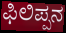
ಫಿಲಿಪ್ಪನ